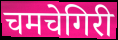
चमचेगिरी